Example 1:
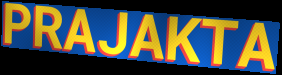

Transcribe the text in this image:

PRAJAKTA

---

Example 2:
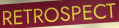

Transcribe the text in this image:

RETROSPECT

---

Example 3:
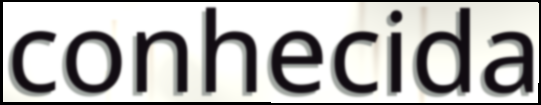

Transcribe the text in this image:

conhecida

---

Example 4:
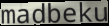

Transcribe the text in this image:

madbeku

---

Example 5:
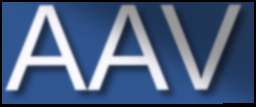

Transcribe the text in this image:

AAV